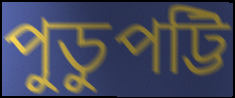
পুডুপট্টি